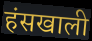
हंसखाली